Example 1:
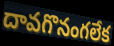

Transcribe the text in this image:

దావగొనంగలేక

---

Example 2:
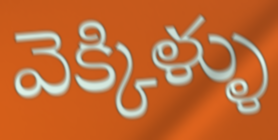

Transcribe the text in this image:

వెక్కిళ్ళు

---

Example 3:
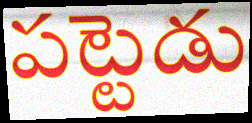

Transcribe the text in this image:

పట్టెడు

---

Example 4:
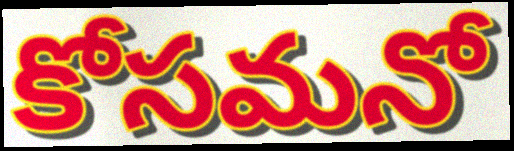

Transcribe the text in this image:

కోసమనో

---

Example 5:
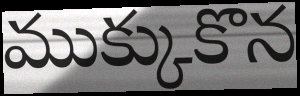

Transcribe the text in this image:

ముక్కుకొన